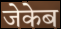
जेकेब